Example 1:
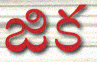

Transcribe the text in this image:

జిక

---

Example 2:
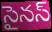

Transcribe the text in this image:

సైనస్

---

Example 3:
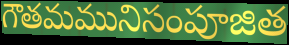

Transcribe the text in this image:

గౌతమమునిసంపూజిత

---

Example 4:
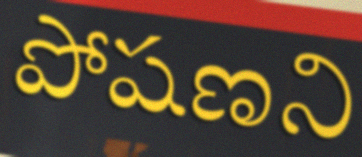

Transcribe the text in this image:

పోషణని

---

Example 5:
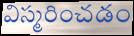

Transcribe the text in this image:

విస్మరించడం